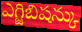
ఎగ్జిబిషన్కు